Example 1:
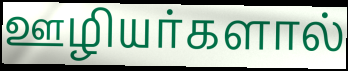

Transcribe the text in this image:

ஊழியர்களால்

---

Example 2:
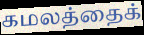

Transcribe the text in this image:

கமலத்தைக்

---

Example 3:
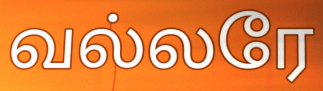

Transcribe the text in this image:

வல்லரே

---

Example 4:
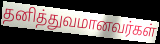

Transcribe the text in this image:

தனித்துவமானவர்கள்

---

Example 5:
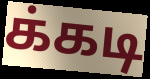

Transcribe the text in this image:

க்கடி